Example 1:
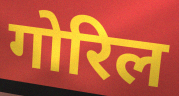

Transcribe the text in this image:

गोरिल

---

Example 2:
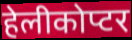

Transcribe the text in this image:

हेलीकोप्टर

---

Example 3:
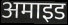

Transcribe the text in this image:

अमाइड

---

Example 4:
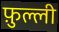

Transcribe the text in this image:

फ़ुल्ली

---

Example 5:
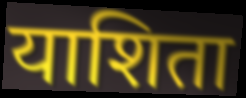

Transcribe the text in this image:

याशिता